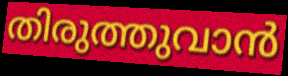
തിരുത്തുവാൻ